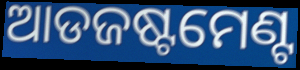
ଆଡଜଷ୍ଟମେଣ୍ଟ